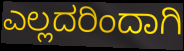
ಎಲ್ಲದರಿಂದಾಗಿ